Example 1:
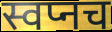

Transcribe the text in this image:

स्वप्नच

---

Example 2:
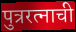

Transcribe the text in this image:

पुत्ररत्नाची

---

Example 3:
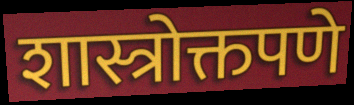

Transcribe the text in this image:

शास्त्रोक्तपणे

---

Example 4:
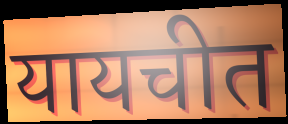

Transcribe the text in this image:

यायचीत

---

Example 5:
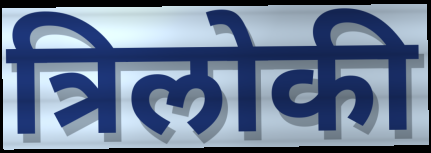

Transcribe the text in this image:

त्रिलोकी